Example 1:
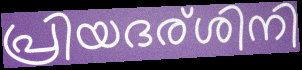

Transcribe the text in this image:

പ്രിയദര്ശിനി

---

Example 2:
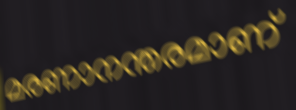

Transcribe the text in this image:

മരണാനന്തരമാണ്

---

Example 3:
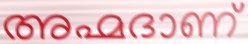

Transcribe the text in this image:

അഹ്മദാണ്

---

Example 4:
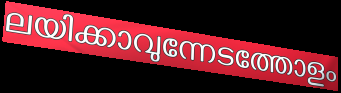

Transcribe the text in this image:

ലയിക്കാവുന്നേടത്തോളം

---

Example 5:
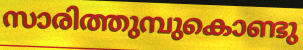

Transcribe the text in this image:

സാരിത്തുമ്പുകൊണ്ടു